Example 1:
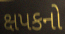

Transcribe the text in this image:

ક્ષપકનો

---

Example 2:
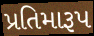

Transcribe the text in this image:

પ્રતિમારૂપ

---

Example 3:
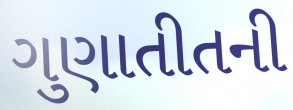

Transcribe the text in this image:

ગુણાતીતની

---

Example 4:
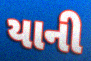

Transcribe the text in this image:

યાની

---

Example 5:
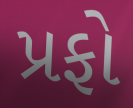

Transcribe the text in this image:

પ્રફો